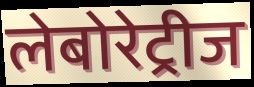
लेबोरेट्रीज